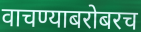
वाचण्याबरोबरच